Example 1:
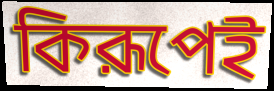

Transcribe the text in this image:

কিরূপেই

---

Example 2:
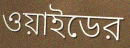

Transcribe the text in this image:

ওয়াইডের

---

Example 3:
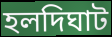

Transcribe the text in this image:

হলদিঘাট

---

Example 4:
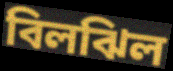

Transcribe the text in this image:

বিলঝিল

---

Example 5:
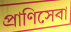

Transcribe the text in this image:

প্রাণিসেবা